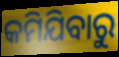
କମିଯିବାରୁ